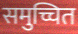
समुच्चित